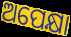
ଅପେକ୍ଷା